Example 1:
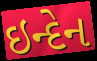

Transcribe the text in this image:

ઇન્દેન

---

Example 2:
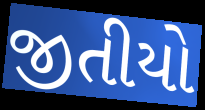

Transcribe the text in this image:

જીતીયો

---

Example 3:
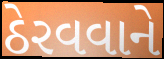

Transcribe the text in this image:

ઠેરવવાને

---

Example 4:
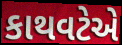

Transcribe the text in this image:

કાથવટેએ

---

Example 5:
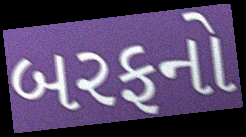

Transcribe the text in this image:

બરફનો